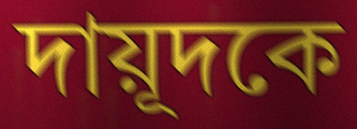
দায়ূদকে